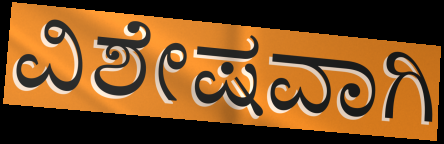
ವಿಶೇಷವಾಗಿ